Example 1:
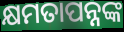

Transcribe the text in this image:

କ୍ଷମତାପନ୍ନଙ୍କ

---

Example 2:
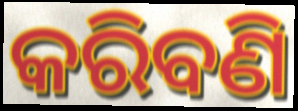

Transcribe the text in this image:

କରିବଣି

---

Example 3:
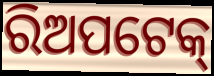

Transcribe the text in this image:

ରିଅପଟେକ୍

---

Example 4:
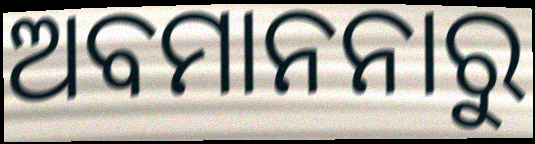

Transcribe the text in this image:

ଅବମାନନାରୁ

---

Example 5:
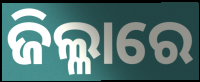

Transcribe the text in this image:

ଜିଲ୍ଳାରେ